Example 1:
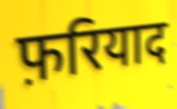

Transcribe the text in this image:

फ़रियाद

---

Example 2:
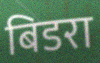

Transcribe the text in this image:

बिडरा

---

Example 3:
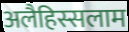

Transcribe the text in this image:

अलैहिस्सलाम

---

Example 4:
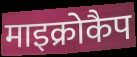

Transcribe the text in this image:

माइक्रोकैप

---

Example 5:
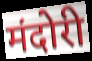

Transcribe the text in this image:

मंदोरी